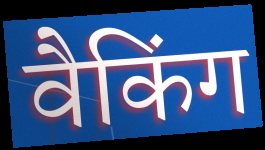
वैकिंग